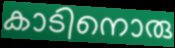
കാടിനൊരു